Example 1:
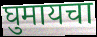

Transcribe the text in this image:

घुमायचा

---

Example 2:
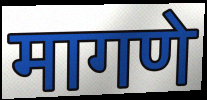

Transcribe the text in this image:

मागणे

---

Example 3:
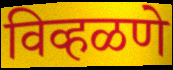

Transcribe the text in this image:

विव्हळणे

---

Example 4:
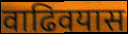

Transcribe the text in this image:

वाढिवयास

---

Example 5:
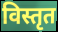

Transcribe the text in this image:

विस्तृत